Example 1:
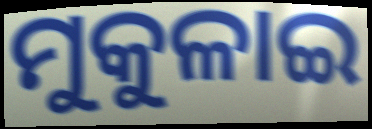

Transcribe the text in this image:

ମୁକୁଳାଇ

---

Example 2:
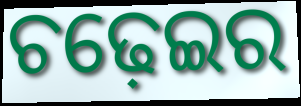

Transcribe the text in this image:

ଚଢ଼େଇର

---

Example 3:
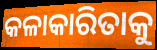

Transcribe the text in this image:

କଳାକାରିତାକୁ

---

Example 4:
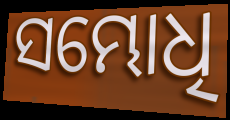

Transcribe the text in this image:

ସମ୍ଭୋଧି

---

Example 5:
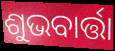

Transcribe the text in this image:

ଶୁଭବାର୍ତ୍ତା